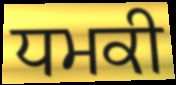
ਧਮਕੀ